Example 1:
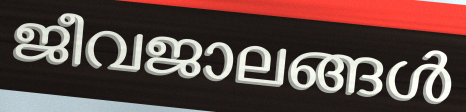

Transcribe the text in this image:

ജീവജാലങ്ങൾ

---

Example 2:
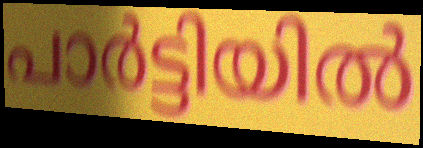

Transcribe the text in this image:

പാർട്ടിയിൽ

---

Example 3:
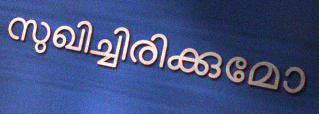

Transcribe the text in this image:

സുഖിച്ചിരിക്കുമോ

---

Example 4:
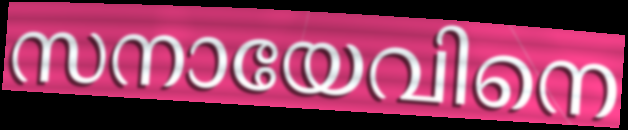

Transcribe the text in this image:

സനായേവിനെ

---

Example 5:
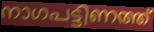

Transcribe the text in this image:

നാഗപട്ടിണത്ത്